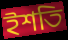
ইশতি